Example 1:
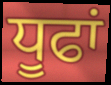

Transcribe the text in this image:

ਧੂਫਾਂ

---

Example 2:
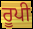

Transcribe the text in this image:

ਰੂਪੀ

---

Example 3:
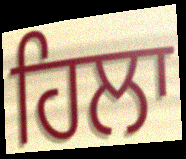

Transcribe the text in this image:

ਹਿਲਾ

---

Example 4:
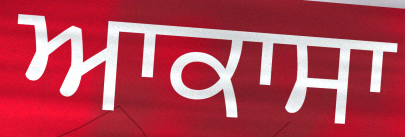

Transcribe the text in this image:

ਆਕਾਸਾ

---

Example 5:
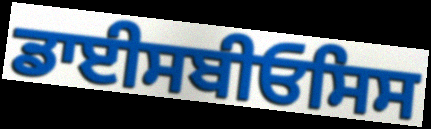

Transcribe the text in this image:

ਡਾਈਸਬੀਓਸਿਸ